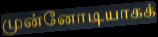
முன்னோடியாகக்